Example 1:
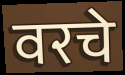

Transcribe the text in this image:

वरचे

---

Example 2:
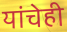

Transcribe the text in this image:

यांचेही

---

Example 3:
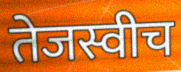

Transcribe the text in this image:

तेजस्वीच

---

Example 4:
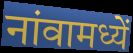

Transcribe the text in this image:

नांवामध्यें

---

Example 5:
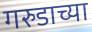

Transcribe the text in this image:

गरुडाच्या